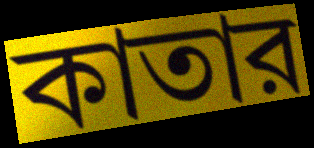
কাতার